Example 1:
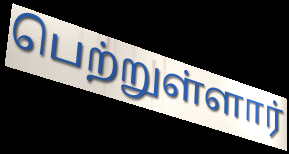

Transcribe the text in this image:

பெற்றுள்ளார்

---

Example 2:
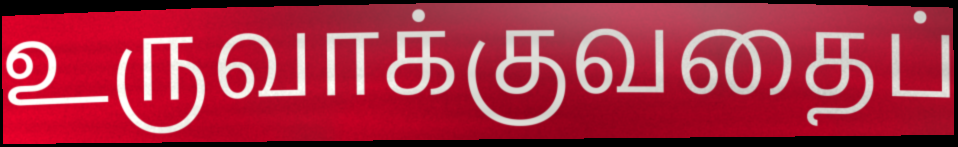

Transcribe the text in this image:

உருவாக்குவதைப்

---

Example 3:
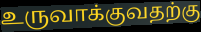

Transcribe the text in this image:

உருவாக்குவதற்கு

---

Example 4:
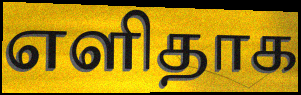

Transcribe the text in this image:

எளிதாக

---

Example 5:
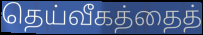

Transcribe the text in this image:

தெய்வீகத்தைத்